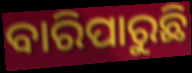
ବାରିପାରୁଛି